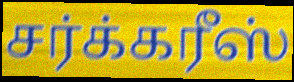
சர்க்கரீஸ்